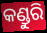
କଣ୍ଡୁରି